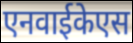
एनवाईकेएस